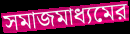
সমাজমাধ্যমের